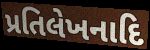
પ્રતિલેખનાદિ